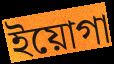
ইয়োগা